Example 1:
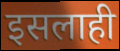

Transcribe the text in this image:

इसलाही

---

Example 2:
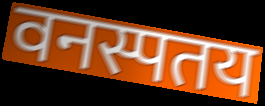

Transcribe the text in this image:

वनस्पतय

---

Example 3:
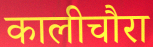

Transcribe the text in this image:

कालीचौरा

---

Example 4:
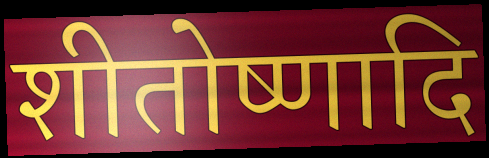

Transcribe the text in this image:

शीतोष्णादि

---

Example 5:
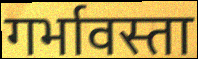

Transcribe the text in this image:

गर्भावस्ता